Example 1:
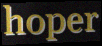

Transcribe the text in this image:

hoper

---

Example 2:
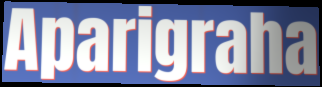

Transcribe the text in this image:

Aparigraha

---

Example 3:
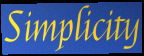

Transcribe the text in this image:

Simplicity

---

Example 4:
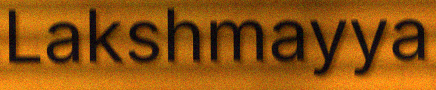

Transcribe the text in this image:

Lakshmayya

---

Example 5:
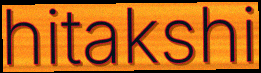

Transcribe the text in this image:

hitakshi